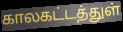
காலகட்டத்துள்